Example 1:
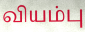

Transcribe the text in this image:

வியம்பு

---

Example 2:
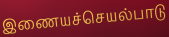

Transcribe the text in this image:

இணையச்செயல்பாடு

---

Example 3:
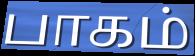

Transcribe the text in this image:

பாகம்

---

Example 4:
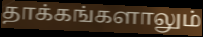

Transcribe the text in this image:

தாக்கங்களாலும்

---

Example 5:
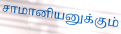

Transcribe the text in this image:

சாமானியனுக்கும்